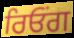
ਰਿਓਂਗ